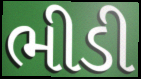
ભીડી